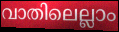
വാതിലെല്ലാം